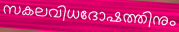
സകലവിധദോഷത്തിനും